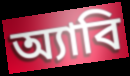
অ্যাবি